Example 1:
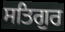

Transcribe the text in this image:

ਸਤਿਗੁਰ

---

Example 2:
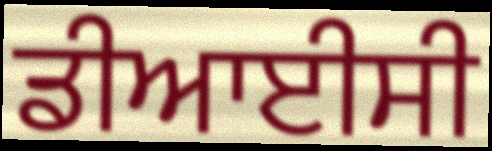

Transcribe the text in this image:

ਡੀਆਈਸੀ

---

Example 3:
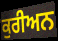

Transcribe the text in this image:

ਕੁਰੀਅਨ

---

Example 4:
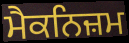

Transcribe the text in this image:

ਮੈਕਨਿਜ਼ਮ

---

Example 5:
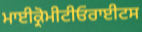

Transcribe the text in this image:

ਮਾਈਕ੍ਰੋਮੀਟੀਓਰਾਈਟਸ